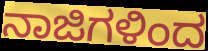
ನಾಜಿಗಳಿಂದ